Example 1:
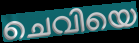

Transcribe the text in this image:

ചെവിയെ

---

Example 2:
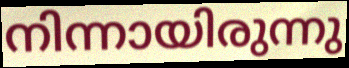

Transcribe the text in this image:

നിന്നായിരുന്നു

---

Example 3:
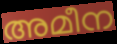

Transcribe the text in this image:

അമീന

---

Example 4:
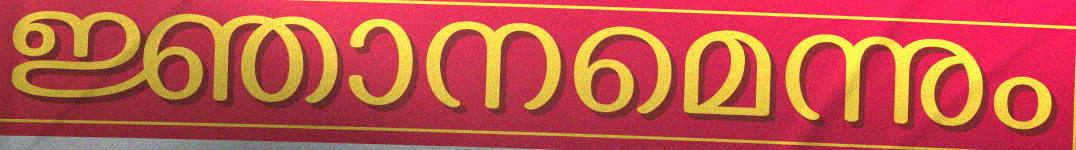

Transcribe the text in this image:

ജ്ഞാനമെന്നും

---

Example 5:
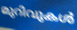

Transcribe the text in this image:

മുറിവുകൾ